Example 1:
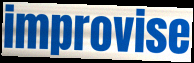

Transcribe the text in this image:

improvise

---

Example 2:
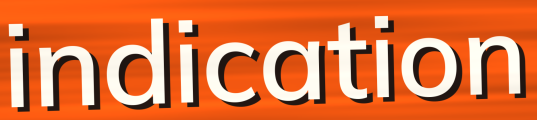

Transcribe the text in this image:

indication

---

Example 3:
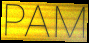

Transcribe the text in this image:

PAM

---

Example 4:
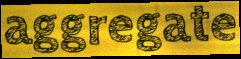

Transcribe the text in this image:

aggregate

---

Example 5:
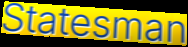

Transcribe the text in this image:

Statesman